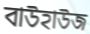
বাউহাউজ